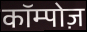
कॉम्पोज़